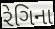
રેગિના